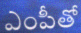
ఎంపీతో